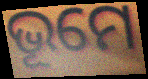
ଭୂମେ